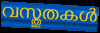
വസ്തുതകൾ